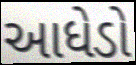
આધેડો